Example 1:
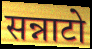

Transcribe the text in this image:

सन्नाटो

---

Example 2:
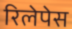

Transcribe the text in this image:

रिलेपेस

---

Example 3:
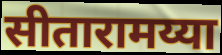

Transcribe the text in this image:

सीतारामय्या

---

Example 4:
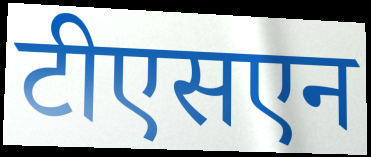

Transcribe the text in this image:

टीएसएन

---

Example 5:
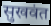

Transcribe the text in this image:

सुखवंत